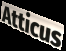
Atticus